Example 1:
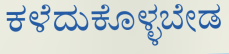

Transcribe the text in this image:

ಕಳೆದುಕೊಳ್ಳಬೇಡ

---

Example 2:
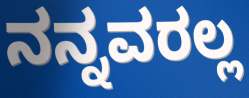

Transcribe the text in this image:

ನನ್ನವರಲ್ಲ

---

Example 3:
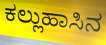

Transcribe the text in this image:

ಕಲ್ಲುಹಾಸಿನ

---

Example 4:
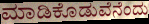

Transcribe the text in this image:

ಮಾಡಿಕೊಡುವೆನೆಂದು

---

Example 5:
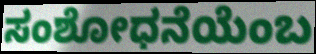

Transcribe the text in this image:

ಸಂಶೋಧನೆಯೆಂಬ